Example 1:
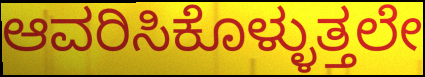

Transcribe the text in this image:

ಆವರಿಸಿಕೊಳ್ಳುತ್ತಲೇ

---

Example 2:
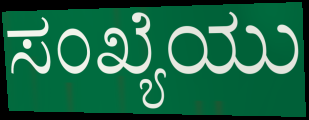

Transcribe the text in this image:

ಸಂಖ್ಯೆಯು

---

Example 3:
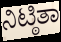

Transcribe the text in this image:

ನಿಟ್ಠಿತಾ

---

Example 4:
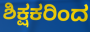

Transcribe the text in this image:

ಶಿಕ್ಷಕರಿಂದ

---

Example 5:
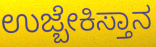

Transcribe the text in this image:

ಉಜ್ಬೇಕಿಸ್ತಾನ